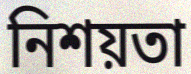
নিশয়তা